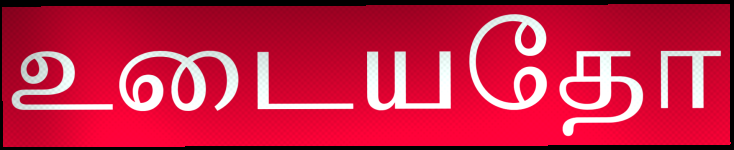
உடையதோ